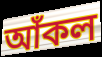
আঁকল